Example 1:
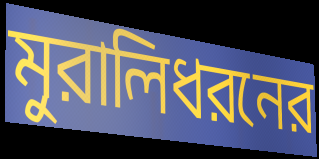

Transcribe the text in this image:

মুরালিধরনের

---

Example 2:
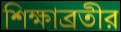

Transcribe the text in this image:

শিক্ষাব্রতীর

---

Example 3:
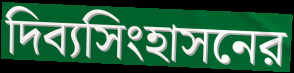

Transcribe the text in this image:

দিব্যসিংহাসনের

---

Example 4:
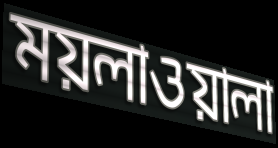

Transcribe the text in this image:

ময়লাওয়ালা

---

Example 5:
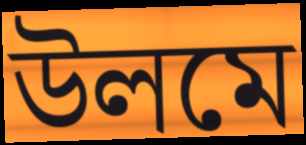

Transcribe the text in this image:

উলমে